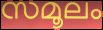
സമൂലം